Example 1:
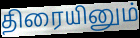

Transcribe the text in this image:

திரையினும்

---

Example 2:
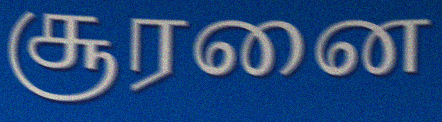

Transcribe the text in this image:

சூரனை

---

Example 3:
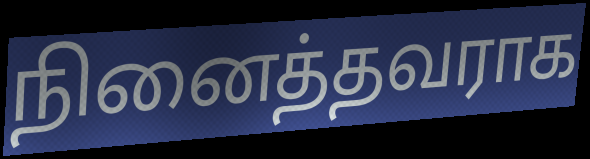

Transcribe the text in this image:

நினைத்தவராக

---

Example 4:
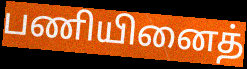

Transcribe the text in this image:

பணியினைத்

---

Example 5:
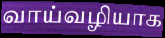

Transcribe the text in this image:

வாய்வழியாக